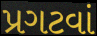
પ્રગટવાં